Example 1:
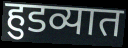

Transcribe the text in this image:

हुडव्यात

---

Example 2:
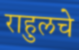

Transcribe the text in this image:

राहुलचे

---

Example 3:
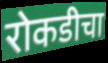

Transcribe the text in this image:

रोकडीचा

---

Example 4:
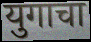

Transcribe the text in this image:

युगाचा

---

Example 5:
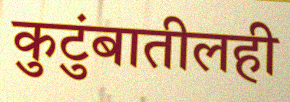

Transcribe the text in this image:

कुटुंबातीलही